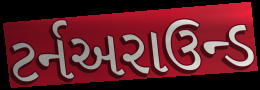
ટર્નઅરાઉન્ડ